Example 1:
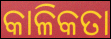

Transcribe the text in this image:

କାଳିକତା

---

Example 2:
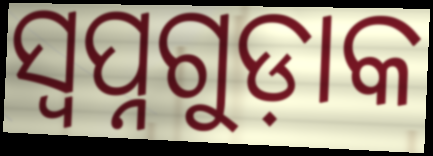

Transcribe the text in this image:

ସ୍ୱପ୍ନଗୁଡ଼ାକ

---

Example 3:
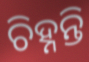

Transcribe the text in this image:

ଚିହ୍ନନ୍ତି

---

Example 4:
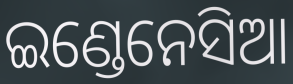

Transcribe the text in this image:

ଇଣ୍ଡେନେସିଆ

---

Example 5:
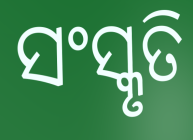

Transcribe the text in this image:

ସଂସ୍କୃତି